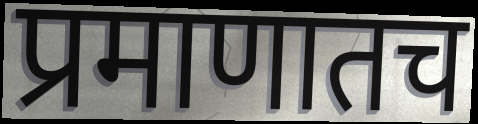
प्रमाणातच